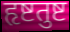
हृष्टतुष्ट